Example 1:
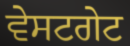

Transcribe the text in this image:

ਵੇਸਟਗੇਟ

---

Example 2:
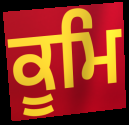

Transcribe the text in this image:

ਕੂਮਿ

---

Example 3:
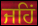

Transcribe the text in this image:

ਜਹਿਂ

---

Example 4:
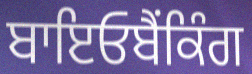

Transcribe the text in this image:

ਬਾਇਓਬੈਂਕਿੰਗ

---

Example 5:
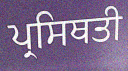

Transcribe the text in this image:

ਪ੍ਰਸਿਥਤੀ